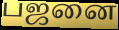
பஜனை